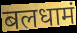
बलधामं